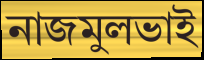
নাজমুলভাই